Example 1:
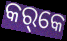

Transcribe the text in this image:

କର୍‌କେ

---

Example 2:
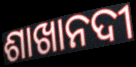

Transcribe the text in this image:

ଶାଖାନଦୀ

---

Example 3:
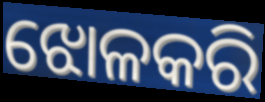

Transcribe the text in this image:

ଝୋଳକରି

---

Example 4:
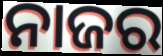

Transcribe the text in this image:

ନାଜର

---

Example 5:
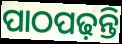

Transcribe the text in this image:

ପାଠପଢ଼ନ୍ତି